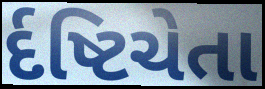
ર્દષ્ટિચેતા